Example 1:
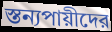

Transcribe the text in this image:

স্তন্যপায়ীদের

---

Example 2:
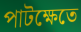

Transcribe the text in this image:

পাটক্ষেতে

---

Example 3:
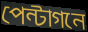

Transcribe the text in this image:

পেন্টাগনে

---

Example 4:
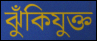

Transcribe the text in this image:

ঝুঁকিযুক্ত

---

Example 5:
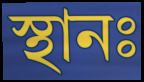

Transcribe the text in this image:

স্থানঃ